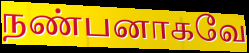
நண்பனாகவே